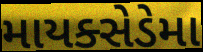
માયક્સેડેમા